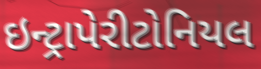
ઇન્ટ્રાપેરીટોનિયલ